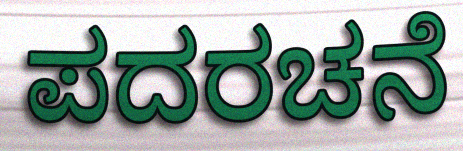
ಪದರಚನೆ